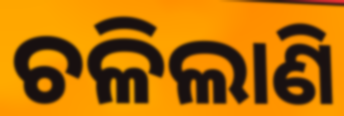
ଚଳିଲାଣି